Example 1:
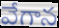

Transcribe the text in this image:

వేగాన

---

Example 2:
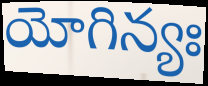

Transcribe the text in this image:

యోగిన్యః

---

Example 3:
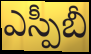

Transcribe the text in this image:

ఎస్పీబీ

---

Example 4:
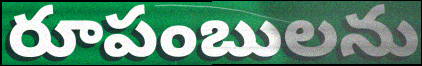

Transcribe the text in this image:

రూపంబులను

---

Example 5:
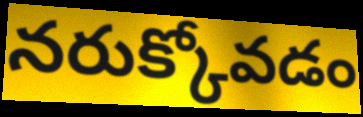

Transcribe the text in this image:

నరుక్కోవడం